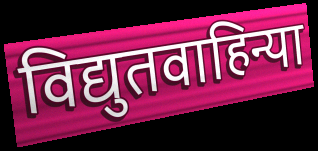
विद्युतवाहिन्या